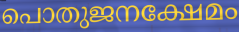
പൊതുജനക്ഷേമം